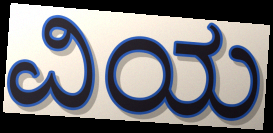
ವಿಯ